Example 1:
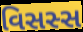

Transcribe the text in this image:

વિસસ્સ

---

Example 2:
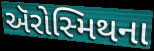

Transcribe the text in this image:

ઍરોસ્મિથના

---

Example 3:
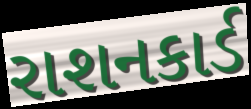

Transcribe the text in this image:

રાશનકાર્ડ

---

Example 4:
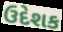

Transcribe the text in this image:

ઉદેશક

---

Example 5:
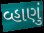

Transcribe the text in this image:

વ્હાણું